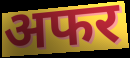
अफर